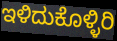
ಇಳಿದುಕೊಳ್ಳಿರಿ